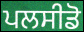
ਪਲਸੀਡੋ